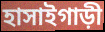
হাসাইগাড়ী